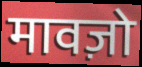
मावज़ो